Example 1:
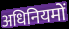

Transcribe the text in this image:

अधिनियमों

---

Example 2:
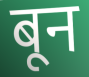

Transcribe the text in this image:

बून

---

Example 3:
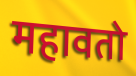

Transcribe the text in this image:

महावतो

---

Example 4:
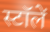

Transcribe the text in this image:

स्टॉलें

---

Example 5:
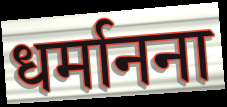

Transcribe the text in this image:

धर्मानना